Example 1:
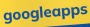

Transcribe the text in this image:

googleapps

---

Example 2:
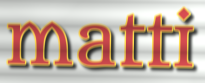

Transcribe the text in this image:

matti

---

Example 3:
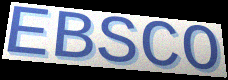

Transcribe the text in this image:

EBSCO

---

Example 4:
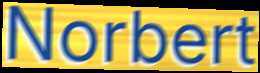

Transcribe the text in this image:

Norbert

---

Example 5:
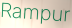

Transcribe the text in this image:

Rampur